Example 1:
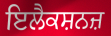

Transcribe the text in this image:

ਇਲੈਕਸ਼ਨਜ਼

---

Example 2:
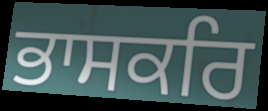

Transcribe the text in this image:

ਭਾਸਕਰਿ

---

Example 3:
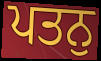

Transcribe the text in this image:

ਪਤਨੁ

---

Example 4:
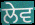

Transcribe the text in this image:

ਲੇਵ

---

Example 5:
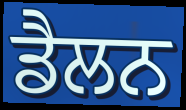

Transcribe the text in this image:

ਡੈਲਨ